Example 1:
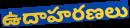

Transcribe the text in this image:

ఉదాహరణలు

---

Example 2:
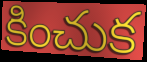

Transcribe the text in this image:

కించుక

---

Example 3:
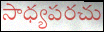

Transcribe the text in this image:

సాధ్యపరచు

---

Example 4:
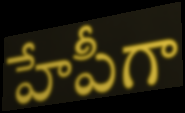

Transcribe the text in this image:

హేపీగా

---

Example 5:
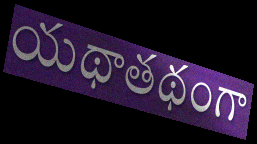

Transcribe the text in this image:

యథాతథంగా